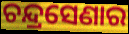
ଚନ୍ଦ୍ରସେଣାର